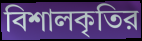
বিশালকৃতির